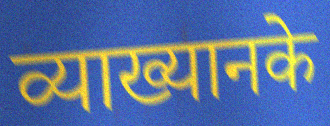
व्याख्यानके